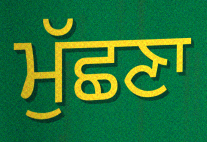
ਮੁੱਛਣਾ